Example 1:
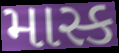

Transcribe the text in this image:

માસ્ક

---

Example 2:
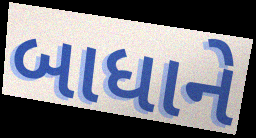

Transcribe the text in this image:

બાધાને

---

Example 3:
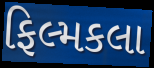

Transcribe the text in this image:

ફિલ્મકલા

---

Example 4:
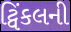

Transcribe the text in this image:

ટ્વિંકલની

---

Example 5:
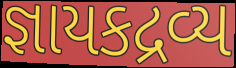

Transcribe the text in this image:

જ્ઞાયકદ્રવ્ય